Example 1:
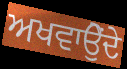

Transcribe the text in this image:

ਅਖਵਾਉੇਂਦੇ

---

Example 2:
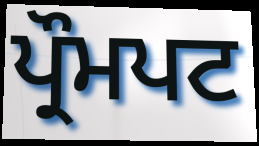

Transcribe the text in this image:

ਪ੍ਰੌਮਪਟ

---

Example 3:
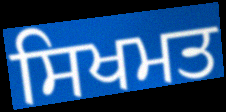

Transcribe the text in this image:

ਸਿਖਮਤ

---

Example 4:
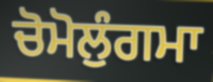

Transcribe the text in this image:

ਚੋਮੋਲੁੰਗਮਾ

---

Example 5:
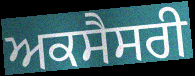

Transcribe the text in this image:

ਅਕਸੈਸਰੀ